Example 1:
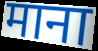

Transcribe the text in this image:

माना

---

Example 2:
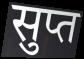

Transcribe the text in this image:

सुप्त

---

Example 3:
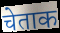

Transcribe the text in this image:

चेताक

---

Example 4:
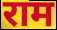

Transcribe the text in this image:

राम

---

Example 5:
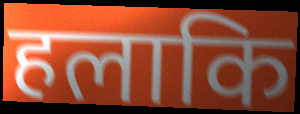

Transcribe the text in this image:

हलाकि